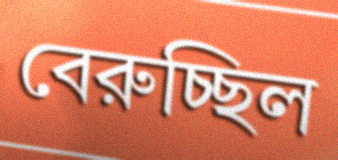
বেরুচ্ছিল